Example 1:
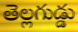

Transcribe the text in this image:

తెల్లగుడ్డు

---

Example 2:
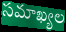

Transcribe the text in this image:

సమాఖ్యల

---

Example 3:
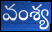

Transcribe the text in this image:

వంశ్య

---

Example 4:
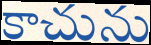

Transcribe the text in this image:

కాచును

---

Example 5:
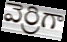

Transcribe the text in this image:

వెర్రిగా